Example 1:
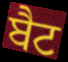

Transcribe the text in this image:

ਬੈਟ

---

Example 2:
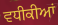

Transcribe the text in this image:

ਵਧੀਕੀਆਂ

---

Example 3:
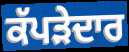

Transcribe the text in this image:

ਕੱਪੜੇਦਾਰ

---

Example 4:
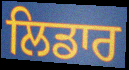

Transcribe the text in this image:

ਲਿਡਾਰ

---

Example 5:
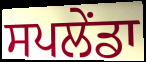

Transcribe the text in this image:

ਸਪਲੇਂਡਾ